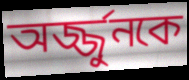
অর্জ্জুনকে